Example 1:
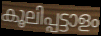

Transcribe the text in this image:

കൂലിപ്പട്ടാളം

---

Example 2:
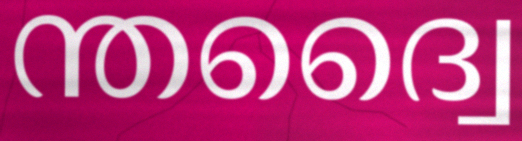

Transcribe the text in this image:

ന്തദ്വൈ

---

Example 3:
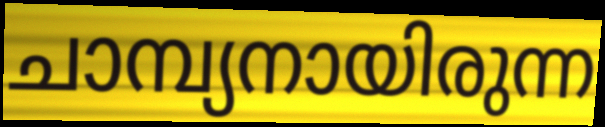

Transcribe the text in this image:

ചാമ്പ്യനായിരുന്ന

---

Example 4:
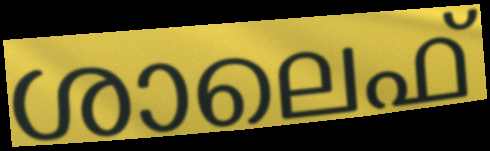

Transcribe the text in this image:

ശാലെഫ്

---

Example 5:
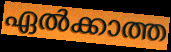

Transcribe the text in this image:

ഏൽക്കാത്ത